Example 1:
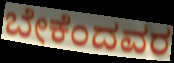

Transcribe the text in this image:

ಬೇಕೆಂದವರ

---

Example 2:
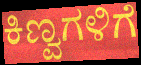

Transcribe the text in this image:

ಕಿಣ್ವಗಳಿಗೆ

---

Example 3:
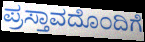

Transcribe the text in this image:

ಪ್ರಸ್ತಾವದೊಂದಿಗೆ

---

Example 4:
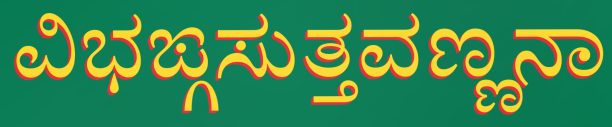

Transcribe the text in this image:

ವಿಭಙ್ಗಸುತ್ತವಣ್ಣನಾ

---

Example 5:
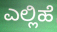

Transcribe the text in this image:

ಎಲ್ಲಿಹೆ